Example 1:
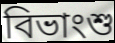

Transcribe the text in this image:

বিভাংশু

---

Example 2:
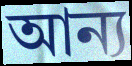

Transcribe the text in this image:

আন্য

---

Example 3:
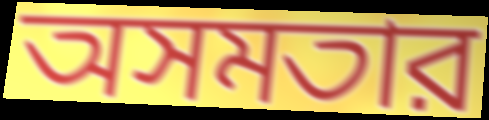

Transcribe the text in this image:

অসমতার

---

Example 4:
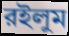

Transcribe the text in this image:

রইলুম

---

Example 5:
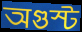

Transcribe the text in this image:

অগুস্ট